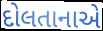
દોલતાનાએ